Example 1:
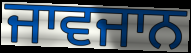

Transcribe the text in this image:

ਜਾਵਜਾਨ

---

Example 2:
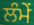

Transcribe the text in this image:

ਲੰਮੇਂ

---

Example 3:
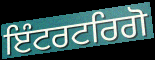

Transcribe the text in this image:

ਇੰਟਰਟਰਿਗੋ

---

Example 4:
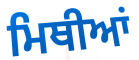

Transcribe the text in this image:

ਮਿਥੀਆਂ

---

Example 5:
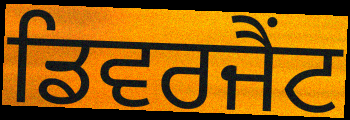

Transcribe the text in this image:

ਡਿਵਰਜੈਂਟ